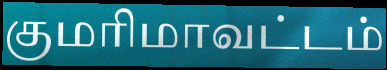
குமரிமாவட்டம்